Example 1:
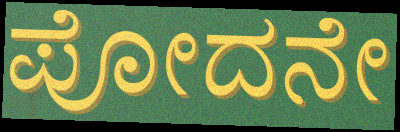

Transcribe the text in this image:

ಪೋದನೇ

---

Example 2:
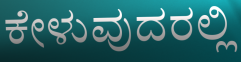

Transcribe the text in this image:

ಕೇಳುವುದರಲ್ಲಿ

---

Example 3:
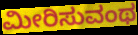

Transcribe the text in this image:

ಮೀರಿಸುವಂಥ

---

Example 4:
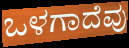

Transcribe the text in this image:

ಒಳಗಾದೆವು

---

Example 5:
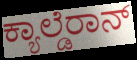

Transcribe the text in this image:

ಕ್ಯಾಲ್ಡೆರಾನ್